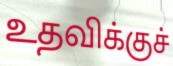
உதவிக்குச்